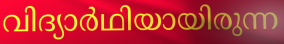
വിദ്യാർഥിയായിരുന്ന